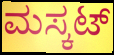
ಮಸ್ಕಟ್